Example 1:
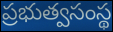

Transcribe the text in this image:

ప్రభుత్వసంస్థ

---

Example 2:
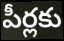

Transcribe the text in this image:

పీర్లకు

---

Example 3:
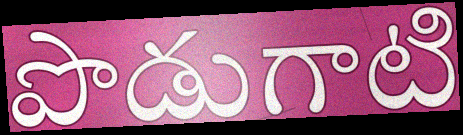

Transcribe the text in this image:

పొడుగాటి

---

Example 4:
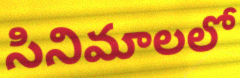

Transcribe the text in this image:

సినిమాలలో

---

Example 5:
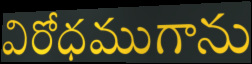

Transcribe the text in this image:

విరోధముగాను